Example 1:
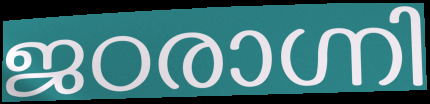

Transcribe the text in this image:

ജഠരാഗ്നി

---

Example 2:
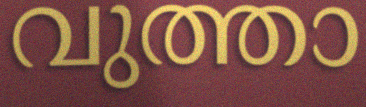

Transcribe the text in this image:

വുത്താ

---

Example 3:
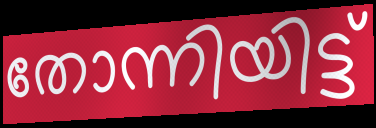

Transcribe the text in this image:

തോന്നിയിട്ട്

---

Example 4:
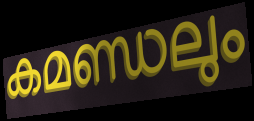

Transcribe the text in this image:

കമണ്ഡലും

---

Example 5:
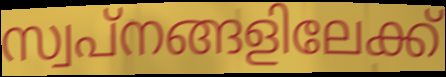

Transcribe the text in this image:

സ്വപ്നങ്ങളിലേക്ക്